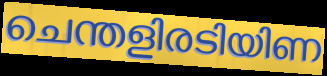
ചെന്തളിരടിയിണ